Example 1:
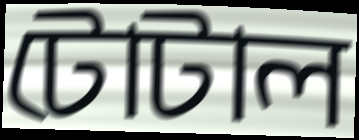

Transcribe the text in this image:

টোটাল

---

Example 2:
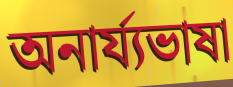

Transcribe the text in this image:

অনার্য্যভাষা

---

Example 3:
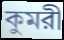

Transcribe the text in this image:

কুমরী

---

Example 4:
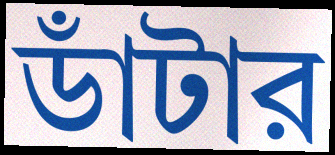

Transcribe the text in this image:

ডাঁটার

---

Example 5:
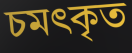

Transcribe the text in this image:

চমৎকৃত